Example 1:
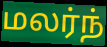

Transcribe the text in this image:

மலர்ந்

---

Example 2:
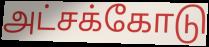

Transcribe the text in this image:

அட்சக்கோடு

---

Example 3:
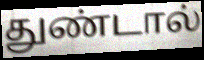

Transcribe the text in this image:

துண்டால்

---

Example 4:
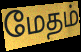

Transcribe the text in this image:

மேதம்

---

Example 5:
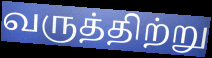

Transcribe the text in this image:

வருத்திற்று